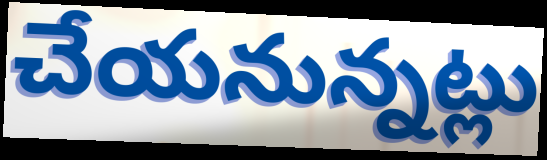
చేయనున్నట్లు